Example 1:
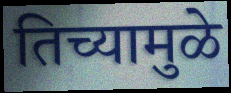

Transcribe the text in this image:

तिच्यामुळे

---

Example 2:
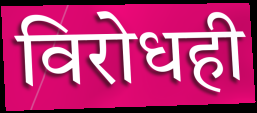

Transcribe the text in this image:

विरोधही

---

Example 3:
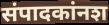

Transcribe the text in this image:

संपादकांनश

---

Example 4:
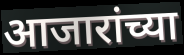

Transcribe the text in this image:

आजारांच्या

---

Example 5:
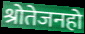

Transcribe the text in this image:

श्रोतेजनहो